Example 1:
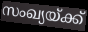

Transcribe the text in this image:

സംഖ്യയ്ക്ക്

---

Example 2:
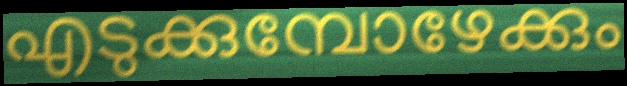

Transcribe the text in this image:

എടുക്കുമ്പോഴേക്കും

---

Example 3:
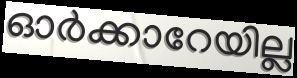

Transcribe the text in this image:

ഓർക്കാറേയില്ല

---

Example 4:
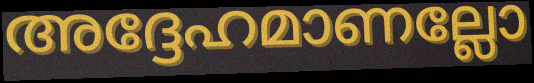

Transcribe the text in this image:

അദ്ദേഹമാണല്ലോ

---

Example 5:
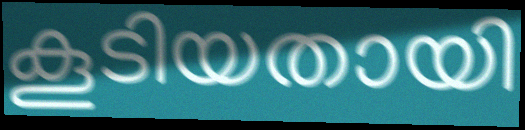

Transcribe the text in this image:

കൂടിയതായി